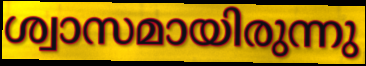
ശ്വാസമായിരുന്നു